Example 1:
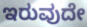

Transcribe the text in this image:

ಇರುವುದೇ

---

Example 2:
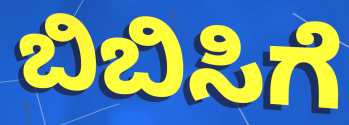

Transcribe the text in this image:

ಬಿಬಿಸಿಗೆ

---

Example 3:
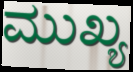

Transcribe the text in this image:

ಮುಖ್ಯ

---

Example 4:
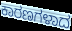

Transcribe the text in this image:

ಕಾರಣಗಳಾದ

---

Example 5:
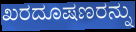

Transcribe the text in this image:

ಖರದೂಷಣರನ್ನು